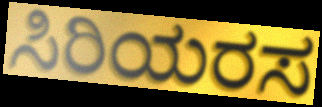
ಸಿರಿಯರಸ